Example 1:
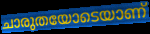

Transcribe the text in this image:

ചാരുതയോടെയാണ്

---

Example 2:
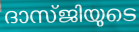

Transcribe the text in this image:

ദാസ്ജിയുടെ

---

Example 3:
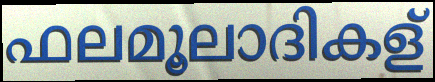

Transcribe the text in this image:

ഫലമൂലാദികള്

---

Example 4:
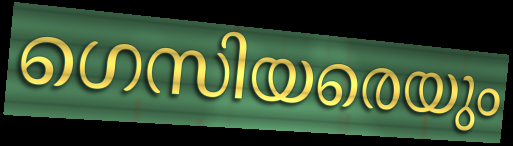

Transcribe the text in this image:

ഗെസിയരെയും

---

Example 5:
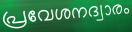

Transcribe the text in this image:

പ്രവേശനദ്വാരം